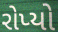
રોપ્યો